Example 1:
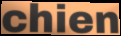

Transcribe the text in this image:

chien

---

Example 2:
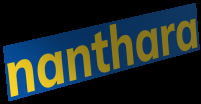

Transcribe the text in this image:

nanthara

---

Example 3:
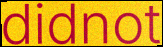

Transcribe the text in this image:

didnot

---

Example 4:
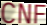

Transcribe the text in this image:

CNF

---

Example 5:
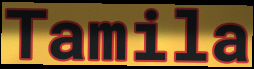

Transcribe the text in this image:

Tamila